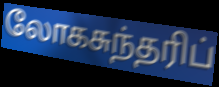
லோகசுந்தரிப்